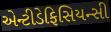
એન્ટીડેફિસિયન્સી